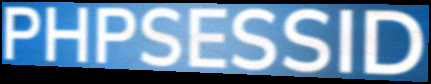
PHPSESSID